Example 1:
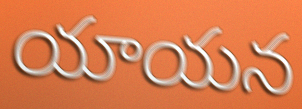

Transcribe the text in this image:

యాయన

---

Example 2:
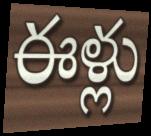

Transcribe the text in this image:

ఈళ్లు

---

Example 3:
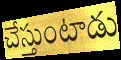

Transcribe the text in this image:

చేస్తుంటాడు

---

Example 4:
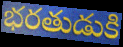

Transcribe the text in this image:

భరతుడుకి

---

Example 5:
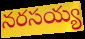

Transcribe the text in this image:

నరసయ్య